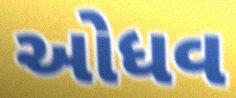
ઓધવ